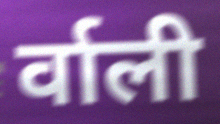
र्वाली